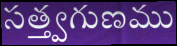
సత్త్వగుణము